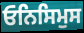
ਓਨਿਸਿਮੁਸ